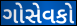
ગોસેવકો